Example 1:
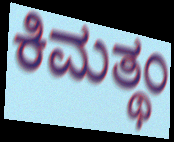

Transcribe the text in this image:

ಕಿಮತ್ಥಂ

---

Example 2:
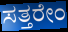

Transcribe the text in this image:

ಸತ್ತರೇಂ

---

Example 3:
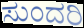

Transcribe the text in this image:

ಸುಂದರಿ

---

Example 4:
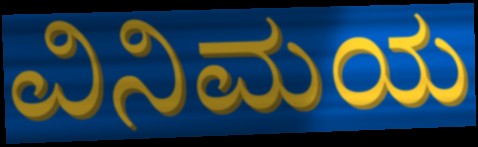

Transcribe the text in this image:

ವಿನಿಮಯ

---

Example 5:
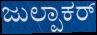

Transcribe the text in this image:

ಜುಲ್ಪಾಕರ್